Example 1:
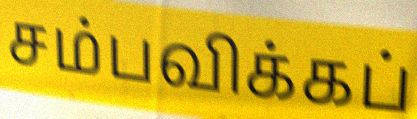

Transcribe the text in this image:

சம்பவிக்கப்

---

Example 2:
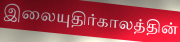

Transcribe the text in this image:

இலையுதிர்காலத்தின்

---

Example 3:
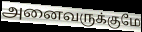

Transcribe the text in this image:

அனைவருக்குமே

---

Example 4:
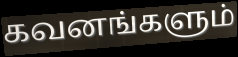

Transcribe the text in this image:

கவனங்களும்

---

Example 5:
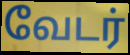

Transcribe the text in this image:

வேடர்